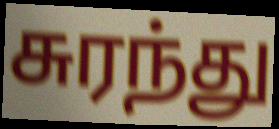
சுரந்து